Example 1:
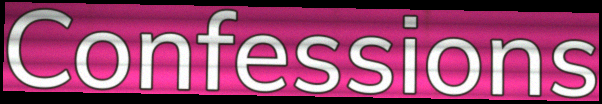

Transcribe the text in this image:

Confessions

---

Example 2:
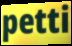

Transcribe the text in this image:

petti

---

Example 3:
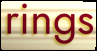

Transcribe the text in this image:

rings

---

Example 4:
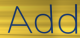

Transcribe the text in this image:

Add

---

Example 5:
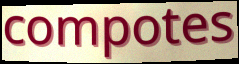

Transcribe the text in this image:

compotes